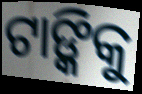
ଟାଙ୍କିକୁ